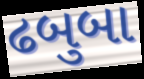
ઢબુબા